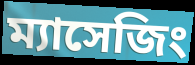
ম্যাসেজিং